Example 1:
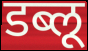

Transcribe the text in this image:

डब्लू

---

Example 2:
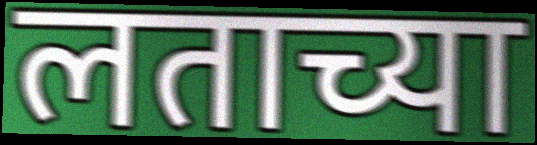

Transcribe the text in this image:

लताच्या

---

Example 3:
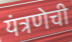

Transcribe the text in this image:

यंत्रणेची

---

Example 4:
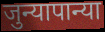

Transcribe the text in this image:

जुन्यापान्या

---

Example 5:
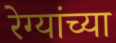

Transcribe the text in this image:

रेग्यांच्या